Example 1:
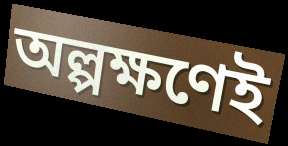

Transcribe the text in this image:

অল্পক্ষণেই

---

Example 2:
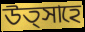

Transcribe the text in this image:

উত্সাহে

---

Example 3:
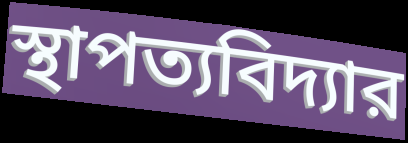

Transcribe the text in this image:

স্থাপত্যবিদ্যার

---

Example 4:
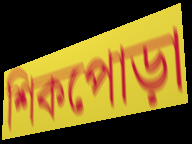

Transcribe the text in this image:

শিকপোড়া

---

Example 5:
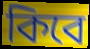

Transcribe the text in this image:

কিবে